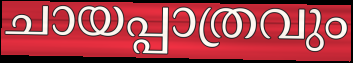
ചായപ്പാത്രവും